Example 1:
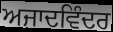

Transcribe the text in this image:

ਅਜਾਦਵਿੰਦਰ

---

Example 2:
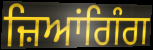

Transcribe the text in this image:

ਜ਼ਿਆਂਗਿੰਗ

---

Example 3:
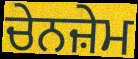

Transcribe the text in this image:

ਚੇਨਜ਼ੇਮ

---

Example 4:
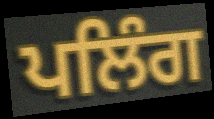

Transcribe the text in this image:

ਪਲਿੰਗ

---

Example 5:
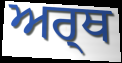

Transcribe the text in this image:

ਅਰ੍ਥ